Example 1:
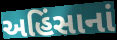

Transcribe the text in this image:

અહિંસાનાં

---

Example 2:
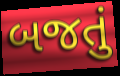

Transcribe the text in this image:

બજતું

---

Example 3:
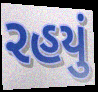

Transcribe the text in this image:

રહયું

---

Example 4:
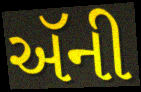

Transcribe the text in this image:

ઍની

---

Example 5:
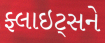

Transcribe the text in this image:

ફ્લાઇટ્સને